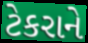
ટેકરાને